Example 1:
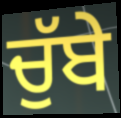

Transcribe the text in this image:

ਚੁੱਬੇ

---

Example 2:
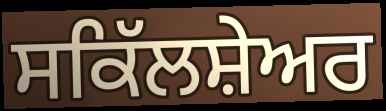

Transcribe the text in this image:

ਸਕਿੱਲਸ਼ੇਅਰ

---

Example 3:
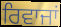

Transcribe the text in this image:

ਰਿਵਾਜਾਂ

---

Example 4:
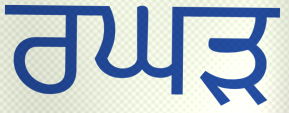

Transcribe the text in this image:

ਰਘੜ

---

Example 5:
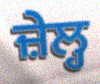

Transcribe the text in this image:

ਜ਼ੇਲ੍ਹ